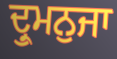
ਦ੍ਰੁਮਨੁਜਾ